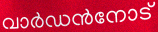
വാർഡൻനോട്